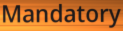
Mandatory